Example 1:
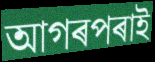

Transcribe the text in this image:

আগৰপৰাই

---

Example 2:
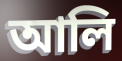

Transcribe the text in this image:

আলি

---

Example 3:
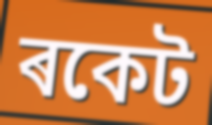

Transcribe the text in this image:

ৰকেট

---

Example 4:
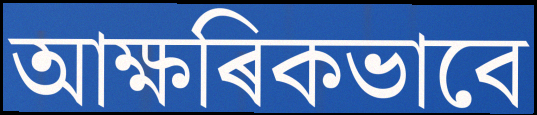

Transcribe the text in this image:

আক্ষৰিকভাবে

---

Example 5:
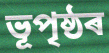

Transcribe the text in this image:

ভূপৃষ্ঠৰ